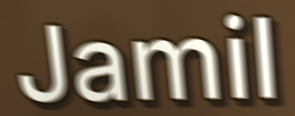
Jamil